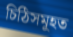
চিঠিসমূহত